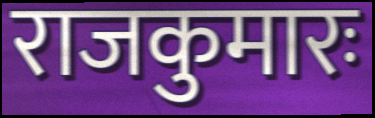
राजकुमारः